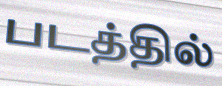
படத்தில்